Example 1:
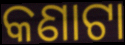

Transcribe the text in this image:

କଣାଟା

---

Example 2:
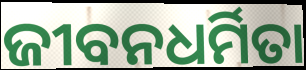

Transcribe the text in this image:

ଜୀବନଧର୍ମିତା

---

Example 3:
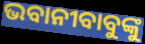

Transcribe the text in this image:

ଭବାନୀବାବୁଙ୍କୁ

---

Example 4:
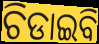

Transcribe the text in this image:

ଚିଡାଇବି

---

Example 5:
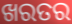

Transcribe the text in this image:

ଖରତର